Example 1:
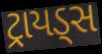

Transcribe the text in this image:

ટ્રાયડ્સ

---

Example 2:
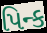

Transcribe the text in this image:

પિન્ક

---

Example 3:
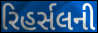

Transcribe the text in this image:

રિહર્સલની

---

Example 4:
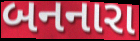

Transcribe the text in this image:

બનનારા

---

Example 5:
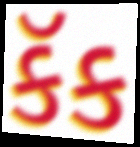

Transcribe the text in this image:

કૅક